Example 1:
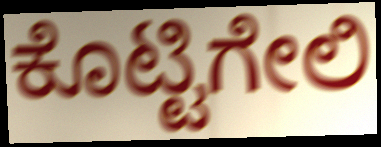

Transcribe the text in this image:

ಕೊಟ್ಟಿಗೇಲಿ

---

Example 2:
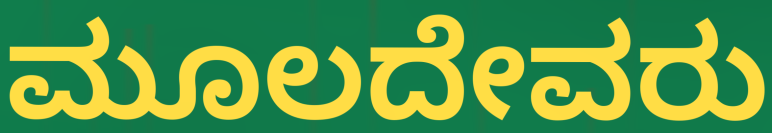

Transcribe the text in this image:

ಮೂಲದೇವರು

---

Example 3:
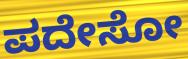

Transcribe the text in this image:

ಪದೇಸೋ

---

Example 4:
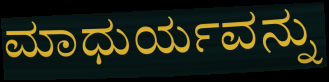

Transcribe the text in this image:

ಮಾಧುರ್ಯವನ್ನು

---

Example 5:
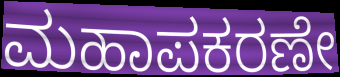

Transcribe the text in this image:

ಮಹಾಪಕರಣೇ